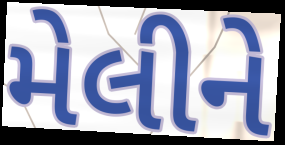
મેલીને